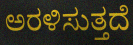
ಅರಳಿಸುತ್ತದೆ